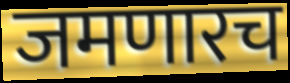
जमणारच